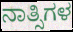
ನಾತ್ಸಿಗಳ